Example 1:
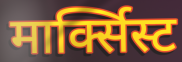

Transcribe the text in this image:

मार्क्सिस्ट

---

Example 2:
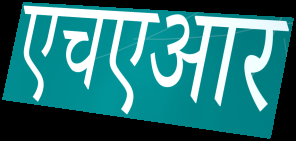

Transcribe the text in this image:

एचएआर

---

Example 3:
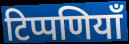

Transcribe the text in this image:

टिप्पणियाँ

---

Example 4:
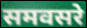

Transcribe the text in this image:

समवसरे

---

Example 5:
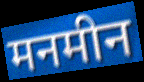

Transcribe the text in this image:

मनमीन